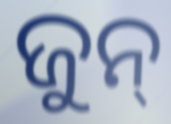
ଜୁନ୍